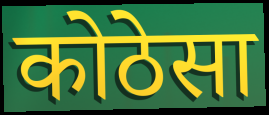
कोठेसा